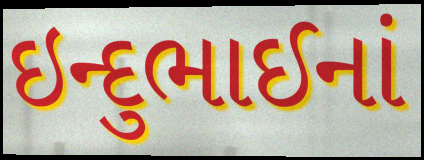
ઇન્દુભાઈનાં